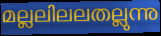
മല്ലലിലലതല്ലുന്നു